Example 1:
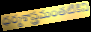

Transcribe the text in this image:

ధర్మశాస్త్రమంతటికిని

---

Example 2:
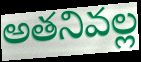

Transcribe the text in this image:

అతనివల్ల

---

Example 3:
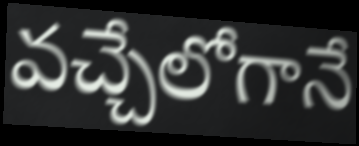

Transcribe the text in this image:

వచ్చేలోగానే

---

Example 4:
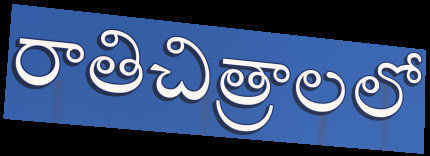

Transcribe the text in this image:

రాతిచిత్రాలలో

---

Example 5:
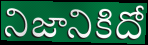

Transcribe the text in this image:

నిజానికిదో